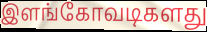
இளங்கோவடிகளது